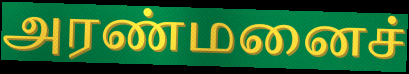
அரண்மனைச்